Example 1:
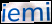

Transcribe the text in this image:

iemi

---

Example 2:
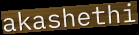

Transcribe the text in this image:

akashethi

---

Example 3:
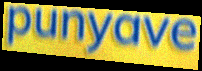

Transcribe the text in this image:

punyave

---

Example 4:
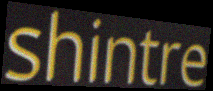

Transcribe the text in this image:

shintre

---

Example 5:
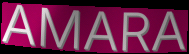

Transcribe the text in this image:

AMARA